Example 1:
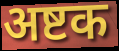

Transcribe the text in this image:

अष्टक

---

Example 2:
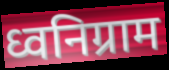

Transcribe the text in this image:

ध्वनिग्राम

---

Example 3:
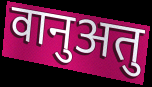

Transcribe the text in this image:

वानुअतु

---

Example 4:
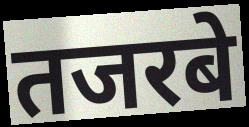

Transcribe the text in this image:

तजरबे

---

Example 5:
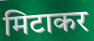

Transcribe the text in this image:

मिटाकर